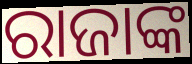
ରାଜାଙ୍କ